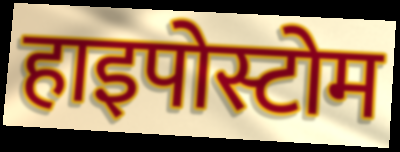
हाइपोस्टोम